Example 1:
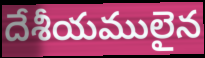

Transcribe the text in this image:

దేశీయములైన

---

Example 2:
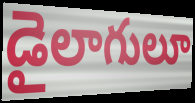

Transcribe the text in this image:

డైలాగులూ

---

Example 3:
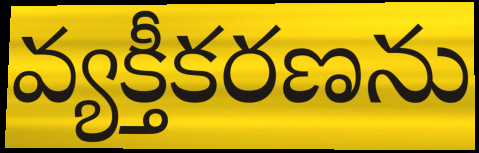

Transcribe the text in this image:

వ్యక్తీకరణను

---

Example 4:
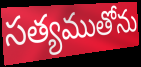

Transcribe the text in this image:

సత్యముతోను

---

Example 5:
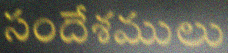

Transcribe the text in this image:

సందేశములు